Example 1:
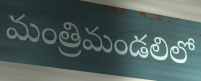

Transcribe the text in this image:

మంత్రిమండలిలో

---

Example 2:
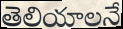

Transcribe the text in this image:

తెలియాలనే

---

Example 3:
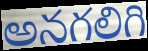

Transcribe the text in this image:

అనగలిగి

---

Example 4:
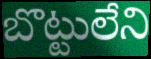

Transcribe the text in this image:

బొట్టులేని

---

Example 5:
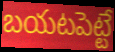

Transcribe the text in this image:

బయటపెట్టే